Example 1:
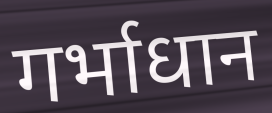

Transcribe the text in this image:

गर्भाधान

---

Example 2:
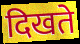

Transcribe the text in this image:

दिखते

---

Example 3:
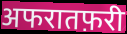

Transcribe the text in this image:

अफरातफ़री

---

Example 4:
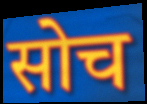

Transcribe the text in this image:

सोच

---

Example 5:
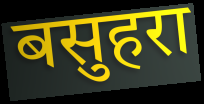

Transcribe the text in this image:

बसुहरा